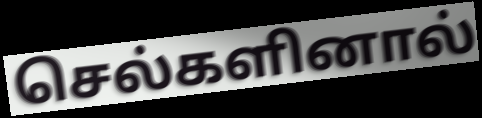
செல்களினால்